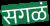
सगळं